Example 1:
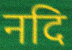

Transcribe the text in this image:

नदि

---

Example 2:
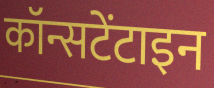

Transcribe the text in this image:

कॉन्सटेंटाइन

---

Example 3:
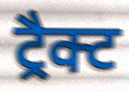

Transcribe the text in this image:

ट्रैक्ट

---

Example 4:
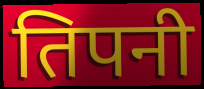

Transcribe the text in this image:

तिपनी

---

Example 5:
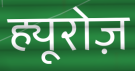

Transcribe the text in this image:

ह्यूरोज़